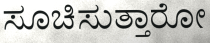
ಸೂಚಿಸುತ್ತಾರೋ